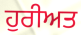
ਹੁਰੀਅਤ